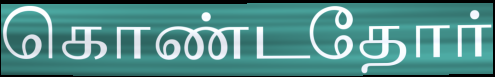
கொண்டதோர்